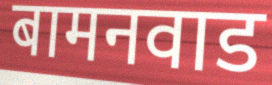
बामनवाड